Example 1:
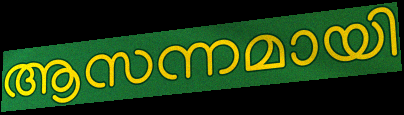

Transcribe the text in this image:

ആസന്നമായി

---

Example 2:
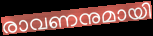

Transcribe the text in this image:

രാവണനുമായി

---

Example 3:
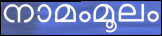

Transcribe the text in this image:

നാമംമൂലം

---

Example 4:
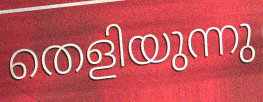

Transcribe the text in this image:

തെളിയുന്നു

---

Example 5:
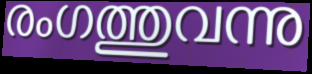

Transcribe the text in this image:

രംഗത്തുവന്നു